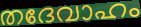
തദേവാഹം